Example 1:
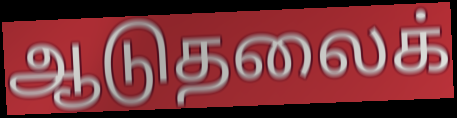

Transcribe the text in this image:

ஆடுதலைக்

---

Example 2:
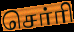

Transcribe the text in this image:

செர்ரி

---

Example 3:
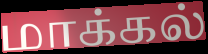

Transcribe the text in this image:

மாக்கல்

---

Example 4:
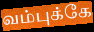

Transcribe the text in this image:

வம்புக்கே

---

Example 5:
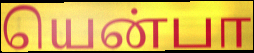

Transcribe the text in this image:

யென்பா